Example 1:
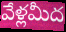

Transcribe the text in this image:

వేళ్లమీద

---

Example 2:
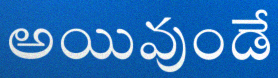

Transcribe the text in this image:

అయివుండే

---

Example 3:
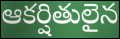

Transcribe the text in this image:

ఆకర్షితులైన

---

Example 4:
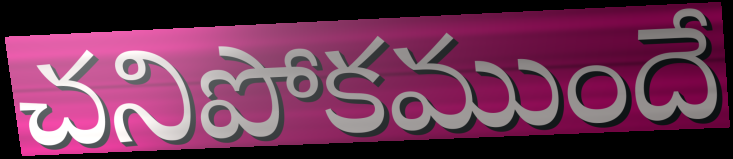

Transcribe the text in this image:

చనిపోకముందే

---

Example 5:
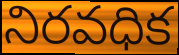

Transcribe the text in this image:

నిరవధిక